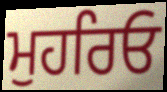
ਮੁਹਰਿਓ